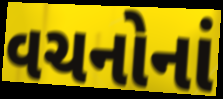
વચનોનાં